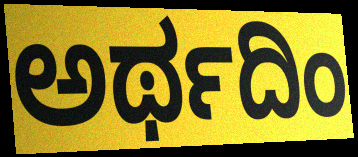
ಅರ್ಥದಿಂ